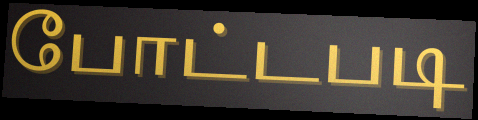
போட்டபடி